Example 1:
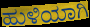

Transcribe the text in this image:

ಹುಳಿಯಾಗಿ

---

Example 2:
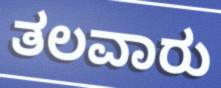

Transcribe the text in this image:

ತಲವಾರು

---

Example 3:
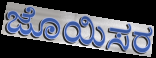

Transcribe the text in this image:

ಜೊಯಿಸರ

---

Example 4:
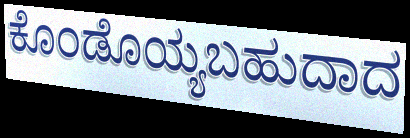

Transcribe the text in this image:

ಕೊಂಡೊಯ್ಯಬಹುದಾದ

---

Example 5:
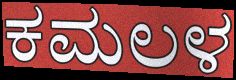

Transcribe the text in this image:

ಕಮಲಳ